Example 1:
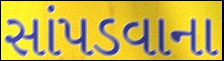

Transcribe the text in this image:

સાંપડવાના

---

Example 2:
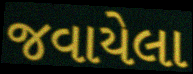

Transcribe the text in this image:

જવાયેલા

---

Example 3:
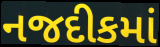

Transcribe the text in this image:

નજદીકમાં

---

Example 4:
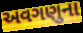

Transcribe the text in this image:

અવગણુના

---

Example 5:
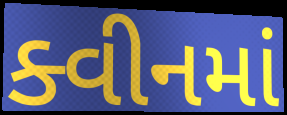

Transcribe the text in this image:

ક્વીનમાં